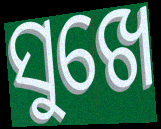
ସୁଖେ